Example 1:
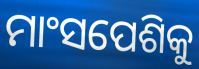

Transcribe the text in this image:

ମାଂସପେଶିକୁ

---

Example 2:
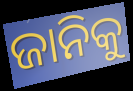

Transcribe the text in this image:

ଜାନିକୁ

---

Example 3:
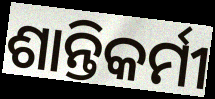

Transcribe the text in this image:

ଶାନ୍ତିକର୍ମୀ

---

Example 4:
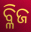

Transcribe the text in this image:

ବ୍ଳିଜ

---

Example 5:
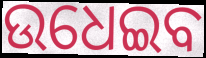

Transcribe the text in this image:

ଉଧେଇବ